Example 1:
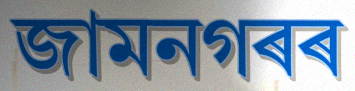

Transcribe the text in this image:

জামনগৰৰ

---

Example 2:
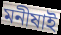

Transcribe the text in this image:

মনীষাই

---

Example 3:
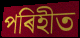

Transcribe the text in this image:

পৰিহীত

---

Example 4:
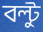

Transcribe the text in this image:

বল্টু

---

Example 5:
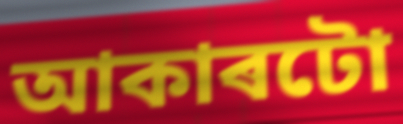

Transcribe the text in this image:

আকাৰটো